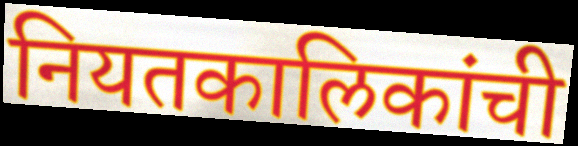
नियतकालिकांची